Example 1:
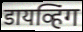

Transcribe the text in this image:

डायव्हिंग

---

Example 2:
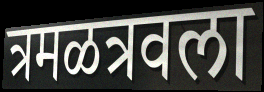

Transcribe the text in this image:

त्रमळत्रवला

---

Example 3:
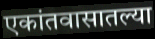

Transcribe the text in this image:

एकांतवासातल्या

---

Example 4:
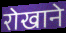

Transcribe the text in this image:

रोखाने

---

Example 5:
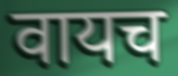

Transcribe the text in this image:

वायच